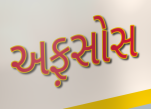
અફ઼સોસ